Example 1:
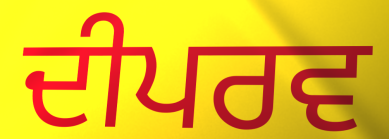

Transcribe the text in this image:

ਦੀਪਰਵ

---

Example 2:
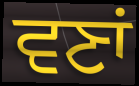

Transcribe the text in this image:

ਵਣਾਂ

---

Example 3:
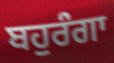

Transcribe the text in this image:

ਬਹੁਰੰਗਾ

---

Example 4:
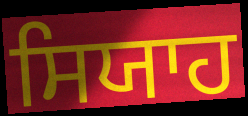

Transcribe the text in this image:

ਸਿਯਾਹ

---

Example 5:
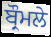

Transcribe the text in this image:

ਬ੍ਰੌਮਲੇ